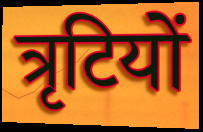
त्रृटियों